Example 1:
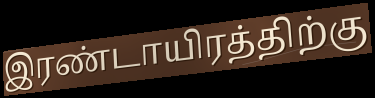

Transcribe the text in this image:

இரண்டாயிரத்திற்கு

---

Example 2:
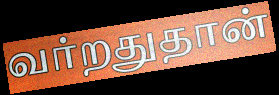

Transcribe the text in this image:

வர்றதுதான்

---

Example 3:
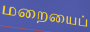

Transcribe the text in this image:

மறையைப்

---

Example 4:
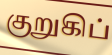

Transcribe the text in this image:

குறுகிப்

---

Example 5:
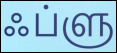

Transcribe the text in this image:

ஃப்ளு